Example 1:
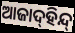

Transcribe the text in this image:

ଆଜାଦ୍‍ହିନ୍ଦ୍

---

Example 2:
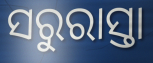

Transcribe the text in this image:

ସରୁରାସ୍ତା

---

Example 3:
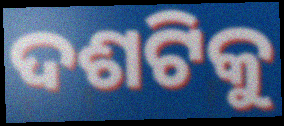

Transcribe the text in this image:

ଦଶଟିକୁ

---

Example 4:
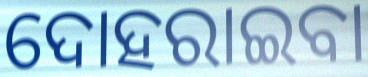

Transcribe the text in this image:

ଦୋହରାଇବା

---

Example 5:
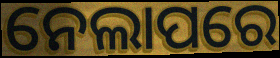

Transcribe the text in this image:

ନେଲାପରେ